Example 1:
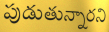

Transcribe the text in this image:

పుడుతున్నారని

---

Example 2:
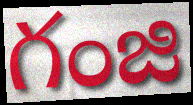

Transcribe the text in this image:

గంజి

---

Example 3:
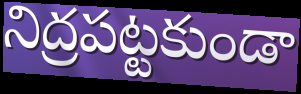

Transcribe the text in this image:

నిద్రపట్టకుండా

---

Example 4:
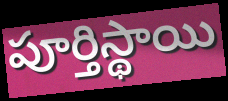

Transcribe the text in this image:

పూర్తిస్థాయి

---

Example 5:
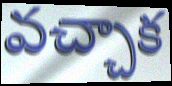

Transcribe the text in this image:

వచ్చాక